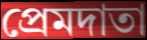
প্রেমদাতা